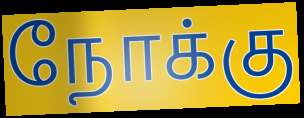
நோக்கு